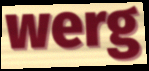
werg